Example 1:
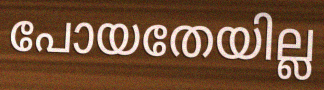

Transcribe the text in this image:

പോയതേയില്ല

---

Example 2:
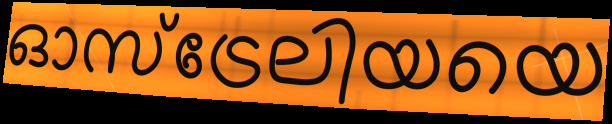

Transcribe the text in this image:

ഓസ്ട്രേലിയയെ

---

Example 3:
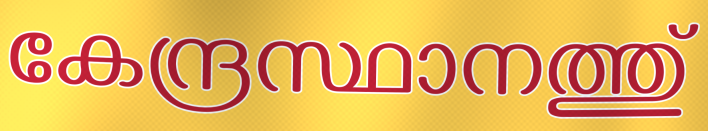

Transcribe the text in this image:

കേന്ദ്രസ്ഥാനത്തു്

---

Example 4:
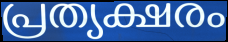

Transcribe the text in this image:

പ്രത്യക്ഷരം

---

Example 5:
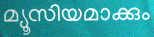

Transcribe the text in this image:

മ്യൂസിയമാക്കും